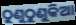
ଠୁଣୁଠୁଣୁକିଆ